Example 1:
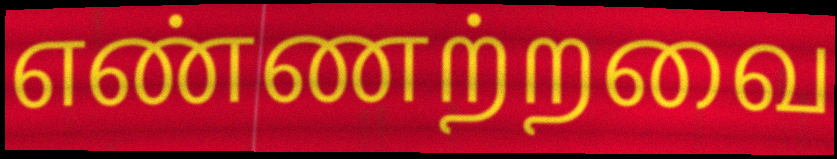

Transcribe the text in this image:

எண்ணற்றவை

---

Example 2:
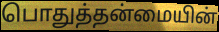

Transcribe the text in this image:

பொதுத்தன்மையின்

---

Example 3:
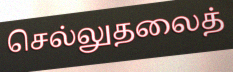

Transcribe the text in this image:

செல்லுதலைத்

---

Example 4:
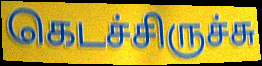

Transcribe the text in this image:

கெடச்சிருச்சு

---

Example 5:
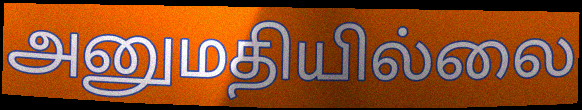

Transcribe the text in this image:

அனுமதியில்லை